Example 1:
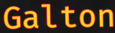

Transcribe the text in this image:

Galton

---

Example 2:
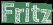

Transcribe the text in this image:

Fritz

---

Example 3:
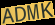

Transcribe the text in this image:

ADMK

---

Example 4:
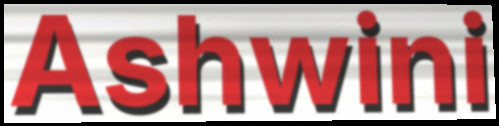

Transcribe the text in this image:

Ashwini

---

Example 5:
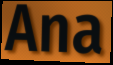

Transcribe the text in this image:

Ana